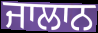
ਜਾਲਾਨ